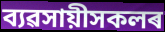
ব্যৱসায়ীসকলৰ